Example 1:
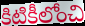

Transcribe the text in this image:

కిటికీలోంచి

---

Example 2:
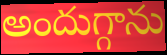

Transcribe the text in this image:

అందుగ్గాను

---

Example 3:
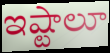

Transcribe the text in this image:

ఇష్టాలూ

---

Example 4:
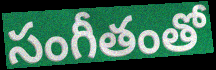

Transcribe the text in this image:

సంగీతంతో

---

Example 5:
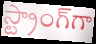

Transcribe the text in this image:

స్ట్రాంగ్‌గా